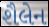
શૈલેન